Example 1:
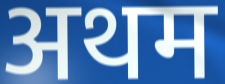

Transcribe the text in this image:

अथम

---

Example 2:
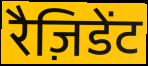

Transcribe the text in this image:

रैज़िडेंट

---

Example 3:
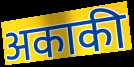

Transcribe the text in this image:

अकाकी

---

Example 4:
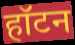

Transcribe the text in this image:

हॉटन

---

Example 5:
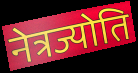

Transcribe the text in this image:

नेत्रज्योति